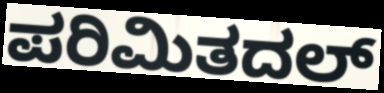
ಪರಿಮಿತದಲ್